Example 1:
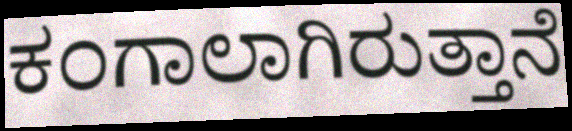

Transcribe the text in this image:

ಕಂಗಾಲಾಗಿರುತ್ತಾನೆ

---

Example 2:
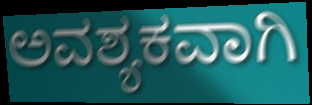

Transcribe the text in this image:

ಅವಶ್ಯಕವಾಗಿ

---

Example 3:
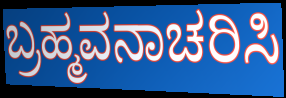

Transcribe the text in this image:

ಬ್ರಹ್ಮವನಾಚರಿಸಿ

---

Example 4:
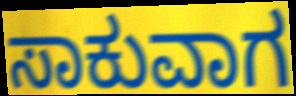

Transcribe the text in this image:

ಸಾಕುವಾಗ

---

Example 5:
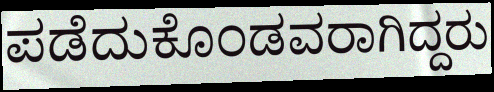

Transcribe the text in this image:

ಪಡೆದುಕೊಂಡವರಾಗಿದ್ದರು